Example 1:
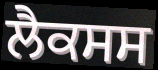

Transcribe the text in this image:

ਲੈਕਸਸ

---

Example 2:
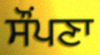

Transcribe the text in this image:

ਸੌਂਪਣਾ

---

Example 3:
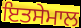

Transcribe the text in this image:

ਇਤਸੇਮਾਲ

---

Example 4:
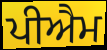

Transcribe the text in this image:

ਪੀਐਮ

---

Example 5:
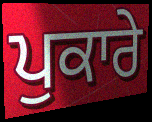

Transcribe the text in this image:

ਪੁਕਾਰੇ